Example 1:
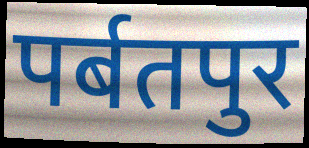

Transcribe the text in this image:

पर्बतपुर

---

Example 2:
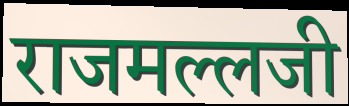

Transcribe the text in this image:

राजमल्लजी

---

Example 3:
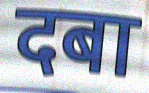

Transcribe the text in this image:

दबा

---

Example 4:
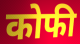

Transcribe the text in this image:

कोफी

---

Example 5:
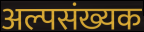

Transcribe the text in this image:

अल्‍पसंख्‍यक